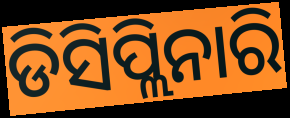
ଡିସିପ୍ଲିନାରି